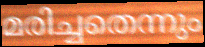
മരിച്ചതെന്നും